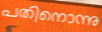
പതിനൊന്നു